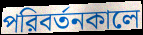
পরিবর্তনকালে